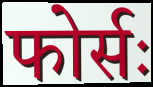
फोर्सः